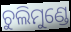
ଚୁଲିମୁଣ୍ଡେ